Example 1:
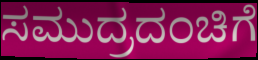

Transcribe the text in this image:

ಸಮುದ್ರದಂಚಿಗೆ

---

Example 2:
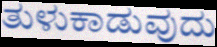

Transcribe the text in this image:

ತುಳುಕಾಡುವುದು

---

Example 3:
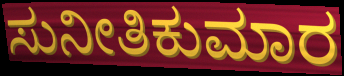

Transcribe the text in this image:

ಸುನೀತಿಕುಮಾರ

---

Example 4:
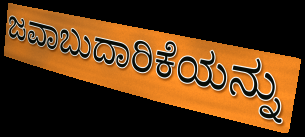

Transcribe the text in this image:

ಜವಾಬುದಾರಿಕೆಯನ್ನು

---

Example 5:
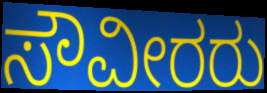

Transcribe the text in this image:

ಸೌವೀರರು